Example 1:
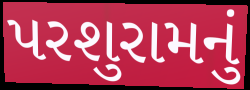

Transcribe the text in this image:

પરશુરામનું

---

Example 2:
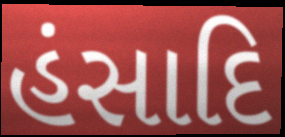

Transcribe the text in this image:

હંસાદિ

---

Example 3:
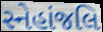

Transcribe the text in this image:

સ્નેહાંજલિ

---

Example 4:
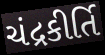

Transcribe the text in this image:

ચંદ્રકીર્તિ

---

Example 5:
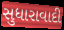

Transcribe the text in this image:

સુધારાવાદી